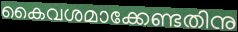
കൈവശമാക്കേണ്ടതിനു